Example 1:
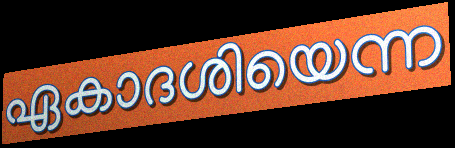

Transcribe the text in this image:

ഏകാദശിയെന്ന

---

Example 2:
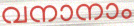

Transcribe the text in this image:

വനാനാം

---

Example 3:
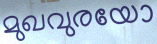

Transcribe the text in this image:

മുഖവുരയോ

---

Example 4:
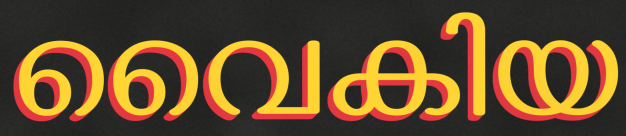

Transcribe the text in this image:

വൈകിയ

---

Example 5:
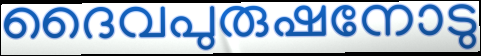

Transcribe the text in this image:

ദൈവപുരുഷനോടു